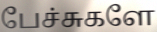
பேச்சுகளே